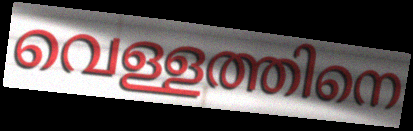
വെള്ളത്തിനെ